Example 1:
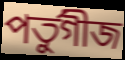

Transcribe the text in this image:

পর্তুগীজ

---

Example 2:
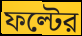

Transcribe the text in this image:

ফল্টের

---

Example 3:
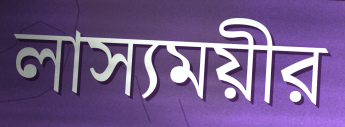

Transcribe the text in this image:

লাস্যময়ীর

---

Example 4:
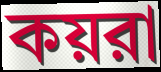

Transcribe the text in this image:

কয়রা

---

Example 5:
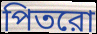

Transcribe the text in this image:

পিতরো